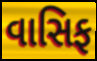
વાસિફ